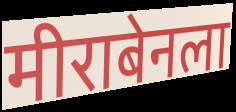
मीराबेनला